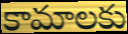
కామాలకు